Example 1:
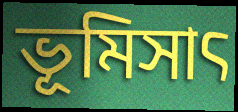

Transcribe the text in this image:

ভূমিসাৎ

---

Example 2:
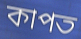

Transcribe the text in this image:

কাপত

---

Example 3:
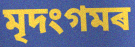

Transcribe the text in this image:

মৃদংগমৰ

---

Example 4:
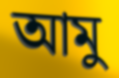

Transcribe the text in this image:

আমু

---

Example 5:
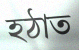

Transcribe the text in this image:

হঠাত